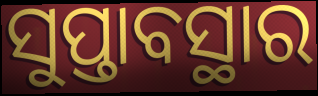
ସୁପ୍ତାବସ୍ଥାର